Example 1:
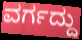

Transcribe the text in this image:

ವರ್ಗದ್ದು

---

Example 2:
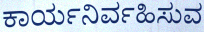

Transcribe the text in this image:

ಕಾರ್ಯನಿರ್ವಹಿಸುವ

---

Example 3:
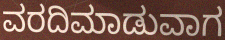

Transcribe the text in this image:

ವರದಿಮಾಡುವಾಗ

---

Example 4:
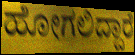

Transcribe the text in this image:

ಹೋಗಲಿದ್ದಾರೆ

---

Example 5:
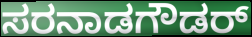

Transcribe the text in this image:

ಸರನಾಡಗೌಡರ್